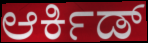
ಆರ್ಕಿಡ್